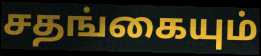
சதங்கையும்